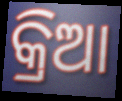
କ୍ରିଆ